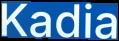
Kadia